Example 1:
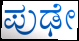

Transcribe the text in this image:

ಪುಢೇ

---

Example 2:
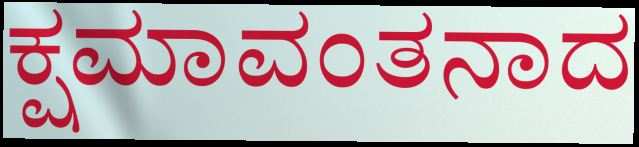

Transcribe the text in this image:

ಕ್ಷಮಾವಂತನಾದ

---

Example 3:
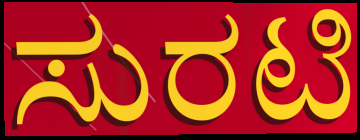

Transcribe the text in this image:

ಸುರಟಿ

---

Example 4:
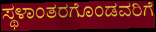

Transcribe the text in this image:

ಸ್ಥಳಾಂತರಗೊಂಡವರಿಗೆ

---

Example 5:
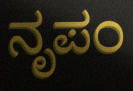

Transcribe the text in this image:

ನೃಪಂ